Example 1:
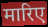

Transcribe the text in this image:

मारिए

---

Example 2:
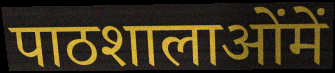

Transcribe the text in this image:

पाठशालाओंमें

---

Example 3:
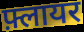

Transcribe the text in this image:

फ़्लायर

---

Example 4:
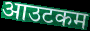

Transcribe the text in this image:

आउटकम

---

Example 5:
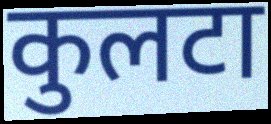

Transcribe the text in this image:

कुलटा